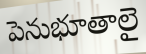
పెనుభూతాలై